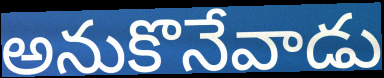
అనుకొనేవాడు